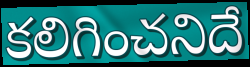
కలిగించనిదే